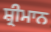
ਸ਼੍ਰੀਮਾਨ